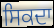
ਸਿਕਦਾ